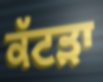
ਕੱਟੜਾ